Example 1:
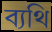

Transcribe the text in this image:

ব্যথি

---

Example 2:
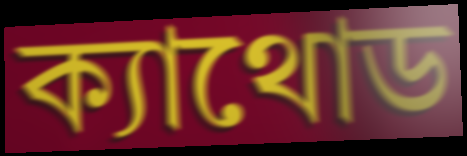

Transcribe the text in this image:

ক্যাথোড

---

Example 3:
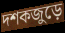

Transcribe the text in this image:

দশকজুড়ে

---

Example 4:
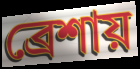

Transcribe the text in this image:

ব্রেশায়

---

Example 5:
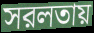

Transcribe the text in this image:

সরলতায়